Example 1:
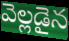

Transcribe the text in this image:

వెల్లడైన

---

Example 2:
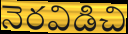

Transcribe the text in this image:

నెరవిడిచి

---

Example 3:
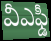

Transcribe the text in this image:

వీఎఫ్డీ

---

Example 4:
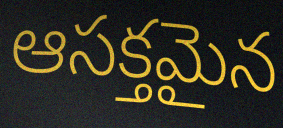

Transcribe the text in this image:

ఆసక్తమైన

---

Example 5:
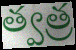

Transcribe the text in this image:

త్వత్ర